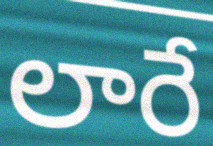
లారే